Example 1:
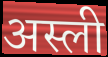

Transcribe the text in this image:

अस्ली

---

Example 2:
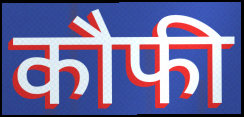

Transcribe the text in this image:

कौफी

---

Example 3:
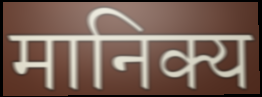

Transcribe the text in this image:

मानिक्य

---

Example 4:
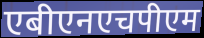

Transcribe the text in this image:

एबीएनएचपीएम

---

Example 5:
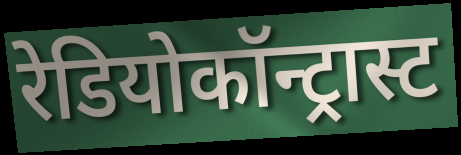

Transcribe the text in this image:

रेडियोकॉन्ट्रास्ट